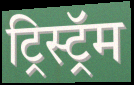
ट्रिस्ट्रॅम